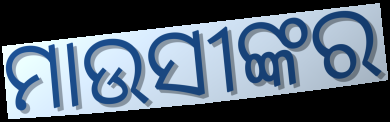
ମାଉସୀଙ୍କର